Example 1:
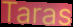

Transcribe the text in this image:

Taras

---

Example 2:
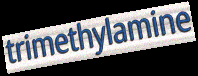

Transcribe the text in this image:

trimethylamine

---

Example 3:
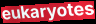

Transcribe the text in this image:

eukaryotes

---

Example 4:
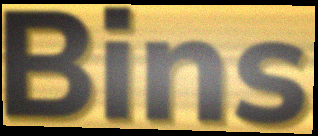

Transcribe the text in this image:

Bins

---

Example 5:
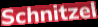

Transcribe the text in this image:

Schnitzel